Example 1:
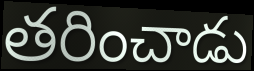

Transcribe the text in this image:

తరించాడు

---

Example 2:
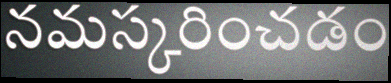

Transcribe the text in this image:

నమస్కరించడం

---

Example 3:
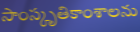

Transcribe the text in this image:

సాంస్కృతికాంశాలను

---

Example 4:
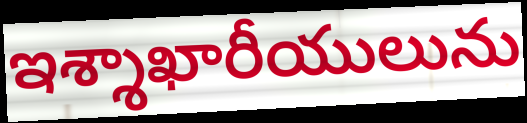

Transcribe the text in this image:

ఇశ్శాఖారీయులును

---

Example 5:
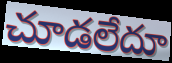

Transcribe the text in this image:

చూడలేదూ